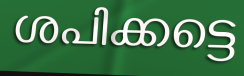
ശപിക്കട്ടെ